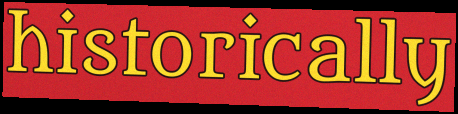
historically